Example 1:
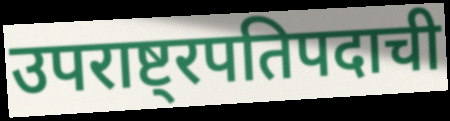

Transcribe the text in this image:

उपराष्ट्रपतिपदाची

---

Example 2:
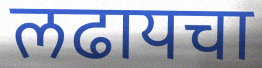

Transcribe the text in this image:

लढायचा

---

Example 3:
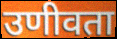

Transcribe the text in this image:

उणीवता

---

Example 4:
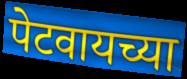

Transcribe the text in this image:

पेटवायच्या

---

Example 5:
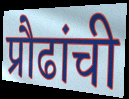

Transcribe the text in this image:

प्रौढांची